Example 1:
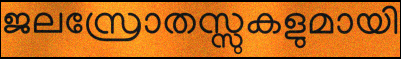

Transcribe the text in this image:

ജലസ്രോതസ്സുകളുമായി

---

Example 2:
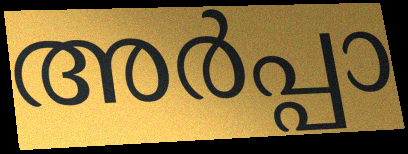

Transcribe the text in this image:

അർപ്പാ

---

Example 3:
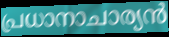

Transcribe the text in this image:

പ്രധാനാചാര്യൻ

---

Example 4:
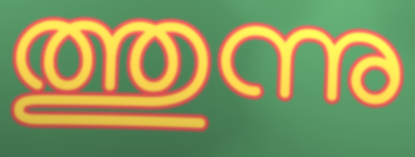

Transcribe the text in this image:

ത്തുന്നു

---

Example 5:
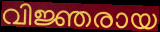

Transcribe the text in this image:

വിജ്ഞരായ